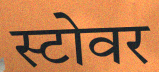
स्टोवर